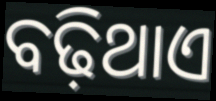
ବଢ଼ିଥାଏ